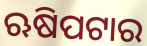
ଋଷିପଟାର